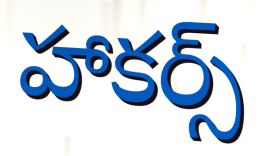
హాకర్స్